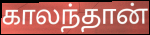
காலந்தான்